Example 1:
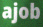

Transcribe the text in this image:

ajob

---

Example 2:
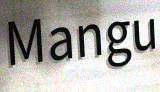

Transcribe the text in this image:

Mangu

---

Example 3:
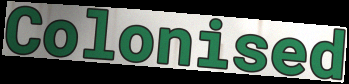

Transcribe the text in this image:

Colonised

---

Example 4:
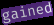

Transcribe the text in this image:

gained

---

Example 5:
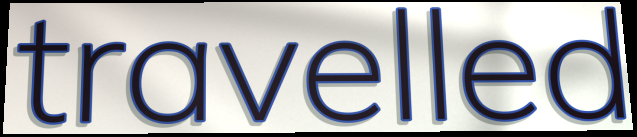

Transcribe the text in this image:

travelled